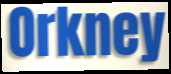
Orkney